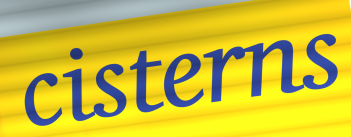
cisterns